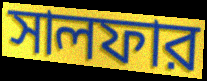
সালফার